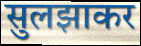
सुलझाकर